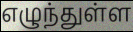
எழுந்துள்ள